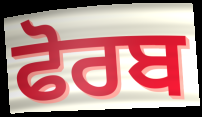
ਫੋਰਬ